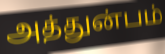
அத்துன்பம்